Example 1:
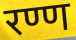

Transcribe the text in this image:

रण्ण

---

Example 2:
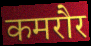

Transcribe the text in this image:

कमरौर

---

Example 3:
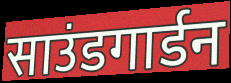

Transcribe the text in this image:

साउंडगार्डन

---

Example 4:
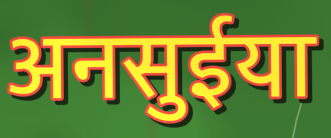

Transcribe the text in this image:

अनसुईया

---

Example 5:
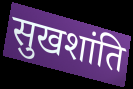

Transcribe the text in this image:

सुखशांति